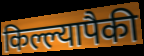
किल्ल्यापैकी